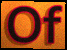
Of